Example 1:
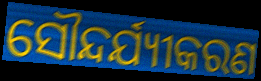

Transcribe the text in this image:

ସୌନ୍ଦର୍ଯ୍ୟୀକରଣ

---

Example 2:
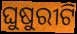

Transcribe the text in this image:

ଘୁଷୁରୀଟି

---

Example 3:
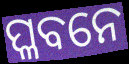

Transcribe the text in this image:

ପ୍ଳବନେ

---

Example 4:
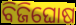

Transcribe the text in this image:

ବିଜିଘୋଷ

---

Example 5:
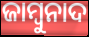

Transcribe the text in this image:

ଜାମ୍ବୁନାଦ